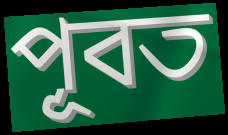
পূবত